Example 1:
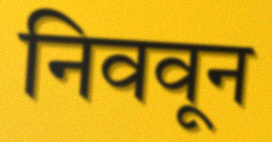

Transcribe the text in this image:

निववून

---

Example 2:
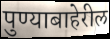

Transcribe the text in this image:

पुण्याबाहेरील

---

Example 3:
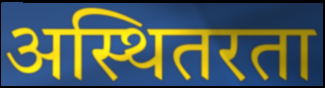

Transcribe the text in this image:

अस्थितरता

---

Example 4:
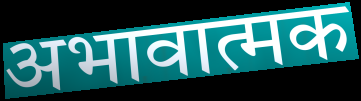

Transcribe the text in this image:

अभावात्मक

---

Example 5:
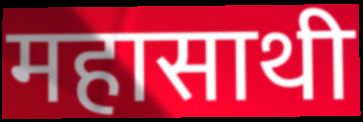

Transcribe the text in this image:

महासाथी